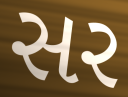
સર